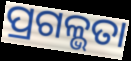
ପ୍ରଗଳ୍ଭତା